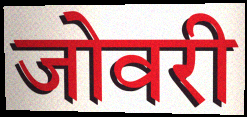
जोवरी